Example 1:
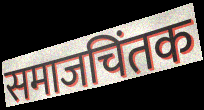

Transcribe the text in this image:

समाजचिंतक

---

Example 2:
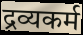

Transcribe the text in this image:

द्रव्यकर्म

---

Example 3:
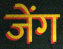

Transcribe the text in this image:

जेंग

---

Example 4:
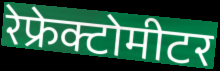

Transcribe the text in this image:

रेफ्रेक्टोमीटर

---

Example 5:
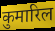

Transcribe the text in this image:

कुमारिल